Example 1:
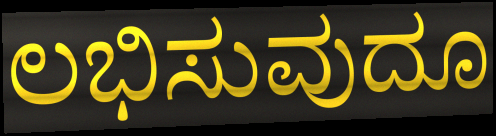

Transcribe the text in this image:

ಲಭಿಸುವುದೂ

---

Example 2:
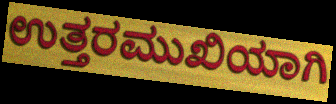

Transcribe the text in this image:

ಉತ್ತರಮುಖಿಯಾಗಿ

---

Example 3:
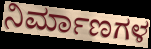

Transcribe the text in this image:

ನಿರ್ಮಾಣಗಳ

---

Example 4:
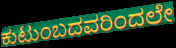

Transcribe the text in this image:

ಕುಟುಂಬದವರಿಂದಲೇ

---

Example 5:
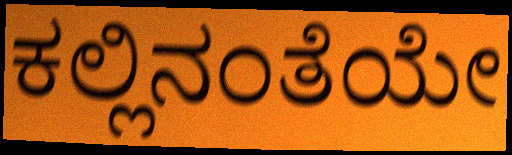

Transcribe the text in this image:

ಕಲ್ಲಿನಂತೆಯೇ